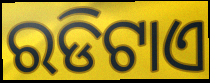
ରଡିଟାଏ